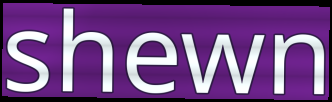
shewn